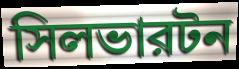
সিলভারটন